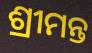
ଶ୍ରୀମନ୍ତ